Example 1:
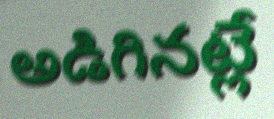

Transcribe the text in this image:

అడిగినట్లే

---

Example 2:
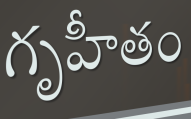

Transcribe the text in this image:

గృహీతం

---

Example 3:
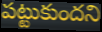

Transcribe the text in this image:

పట్టుకుందని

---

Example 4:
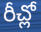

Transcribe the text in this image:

రీచ్లో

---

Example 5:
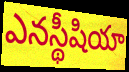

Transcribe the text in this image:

ఎనస్థీషియా